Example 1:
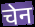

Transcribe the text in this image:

चेन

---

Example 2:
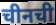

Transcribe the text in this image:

चीनची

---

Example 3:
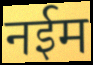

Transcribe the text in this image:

नईम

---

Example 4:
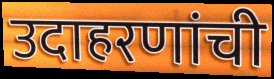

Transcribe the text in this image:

उदाहरणांची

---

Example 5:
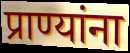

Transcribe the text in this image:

प्राण्यांना